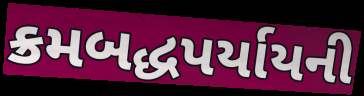
ક્રમબદ્ધપર્યાયની